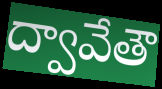
ద్వావేతౌ